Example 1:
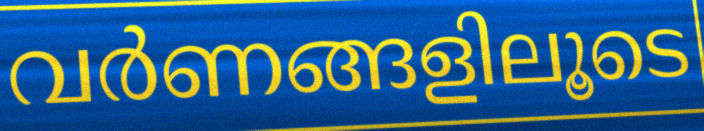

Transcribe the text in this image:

വർണങ്ങളിലൂടെ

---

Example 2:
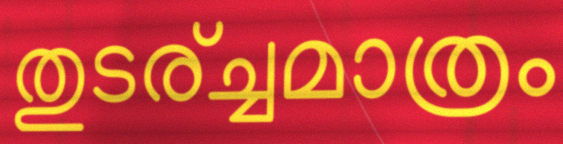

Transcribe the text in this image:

തുടര്ച്ചമാത്രം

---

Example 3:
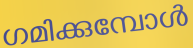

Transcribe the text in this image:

ഗമിക്കുമ്പോൾ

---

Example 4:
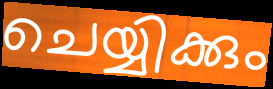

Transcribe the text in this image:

ചെയ്യിക്കും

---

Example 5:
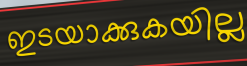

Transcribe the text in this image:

ഇടയാക്കുകയില്ല